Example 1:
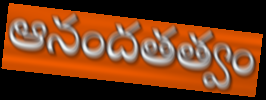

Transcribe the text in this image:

ఆనందతత్వం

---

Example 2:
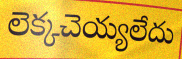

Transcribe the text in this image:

లెక్కచెయ్యలేదు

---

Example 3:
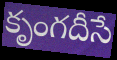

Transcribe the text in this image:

కృంగదీసే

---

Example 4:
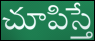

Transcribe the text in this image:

చూపిస్తే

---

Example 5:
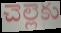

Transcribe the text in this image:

చెల్లెకు